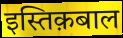
इस्तिक़बाल